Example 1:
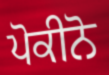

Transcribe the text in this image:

ਪੋਕੀਨੋ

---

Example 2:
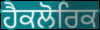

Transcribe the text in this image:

ਹੈਕਲੋਰਿਕ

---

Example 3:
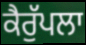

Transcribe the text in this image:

ਕੈਰੁੱਪਲਾ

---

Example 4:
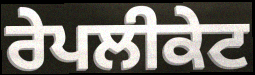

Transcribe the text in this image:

ਰੇਪਲੀਕੇਟ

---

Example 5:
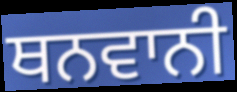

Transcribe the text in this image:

ਥਨਵਾਨੀ